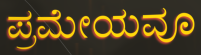
ಪ್ರಮೇಯವೂ